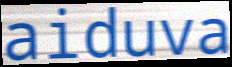
aiduva